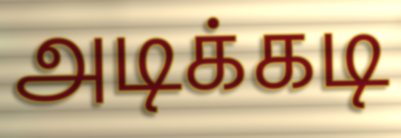
அடிக்கடி